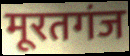
मूरतगंज